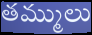
తమ్ములు